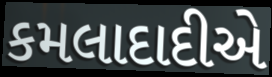
કમલાદાદીએ